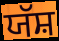
ਯੱਸ਼